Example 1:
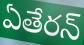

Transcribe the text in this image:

ఏతేరన్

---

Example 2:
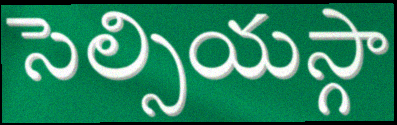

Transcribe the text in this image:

సెల్సియస్గా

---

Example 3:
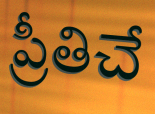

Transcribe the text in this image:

ప్రీతిచే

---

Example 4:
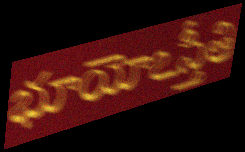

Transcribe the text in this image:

భూయోఽస్తీతి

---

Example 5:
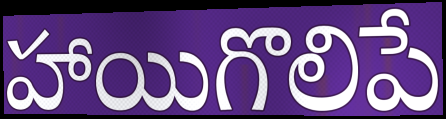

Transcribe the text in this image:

హాయిగొలిపే